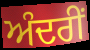
ਅੰਦਰੀਂ